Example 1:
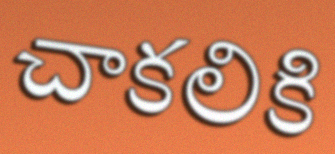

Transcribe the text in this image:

చాకలికి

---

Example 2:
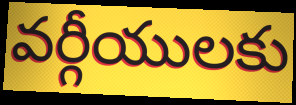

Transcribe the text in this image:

వర్గీయులకు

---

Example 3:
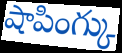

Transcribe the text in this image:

షాపింగ్కు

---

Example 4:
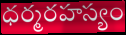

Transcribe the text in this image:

ధర్మరహస్యం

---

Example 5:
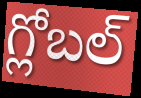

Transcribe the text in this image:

గ్లోబల్